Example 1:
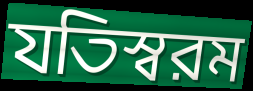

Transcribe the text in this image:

যতিস্বরম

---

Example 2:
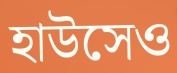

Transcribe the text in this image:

হাউসেও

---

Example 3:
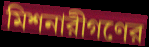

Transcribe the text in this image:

মিশনারীগণের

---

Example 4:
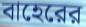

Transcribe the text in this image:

বাহেরের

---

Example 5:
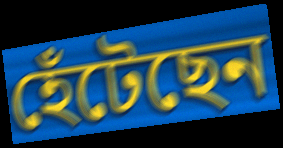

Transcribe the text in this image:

হেঁটেছেন